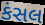
કંસલ